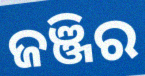
ଜଞ୍ଜିର